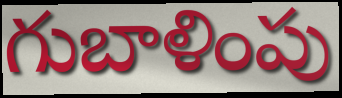
గుబాళింపు